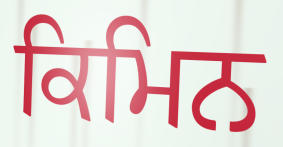
ਕਿਮਿਨ